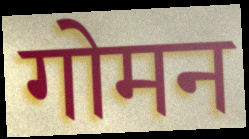
गोमन